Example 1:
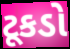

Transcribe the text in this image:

ટૂકડો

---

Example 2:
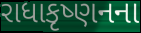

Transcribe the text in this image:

રાધાકૃષ્ણનના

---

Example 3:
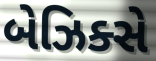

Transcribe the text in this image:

બેઝિક્સે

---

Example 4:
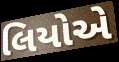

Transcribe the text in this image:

લિયોએ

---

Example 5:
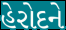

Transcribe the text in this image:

હેરોદને